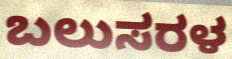
ಬಲುಸರಳ